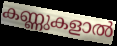
കണ്ണുകളാൽ